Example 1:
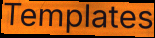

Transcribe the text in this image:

Templates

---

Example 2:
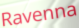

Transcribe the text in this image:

Ravenna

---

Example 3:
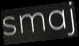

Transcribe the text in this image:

smaj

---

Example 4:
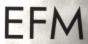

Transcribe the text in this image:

EFM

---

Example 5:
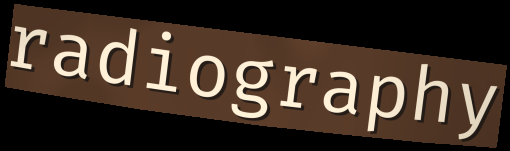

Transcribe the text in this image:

radiography